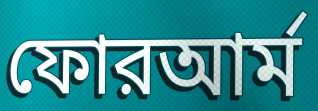
ফোরআর্ম